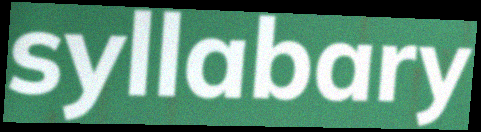
syllabary